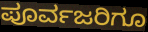
ಪೂರ್ವಜರಿಗೂ